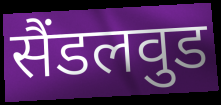
सैंडलवुड